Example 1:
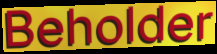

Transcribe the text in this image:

Beholder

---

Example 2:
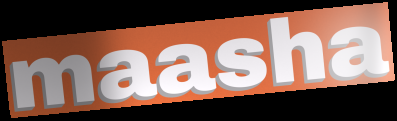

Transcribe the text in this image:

maasha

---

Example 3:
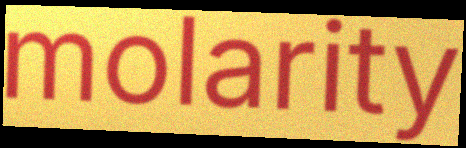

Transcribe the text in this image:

molarity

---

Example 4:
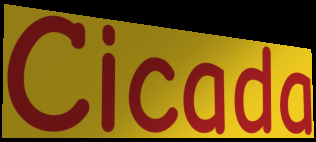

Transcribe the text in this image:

Cicada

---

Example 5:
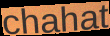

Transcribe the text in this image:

chahat